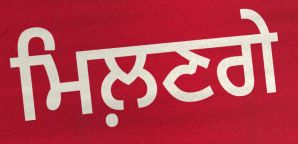
ਮਿਲ਼ਣਗੇ